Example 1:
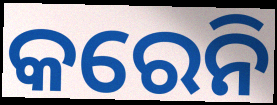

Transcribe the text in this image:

କରେନି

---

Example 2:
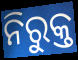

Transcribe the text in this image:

ନିରୁକ୍ତ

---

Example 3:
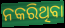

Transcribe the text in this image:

ନକରିଥିବା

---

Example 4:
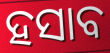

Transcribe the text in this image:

ହସାବ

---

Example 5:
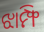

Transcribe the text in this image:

ଝାମ୍ଫି